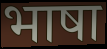
भाषा